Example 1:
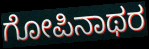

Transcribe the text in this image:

ಗೋಪಿನಾಥರ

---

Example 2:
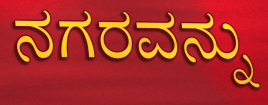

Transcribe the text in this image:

ನಗರವನ್ನು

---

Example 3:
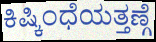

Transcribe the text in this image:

ಕಿಷ್ಕಿಂಧೆಯತ್ತಣ್ಗೆ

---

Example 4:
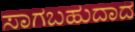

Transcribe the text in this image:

ಸಾಗಬಹುದಾದ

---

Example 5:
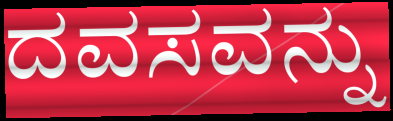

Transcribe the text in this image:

ದವಸವನ್ನು